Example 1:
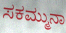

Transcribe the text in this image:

ಸಕಮ್ಮುನಾ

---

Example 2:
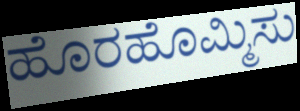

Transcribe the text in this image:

ಹೊರಹೊಮ್ಮಿಸು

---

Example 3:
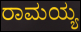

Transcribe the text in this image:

ರಾಮಯ್ಯ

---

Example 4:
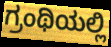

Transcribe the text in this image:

ಗ್ರಂಥಿಯಲ್ಲಿ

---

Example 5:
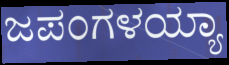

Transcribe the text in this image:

ಜಪಂಗಳಯ್ಯಾ